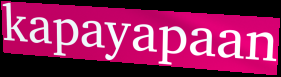
kapayapaan